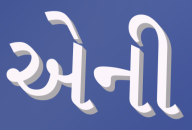
એની